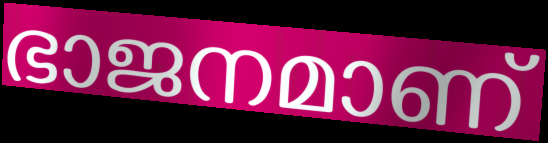
ഭാജനമാണ്